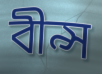
বীন্স